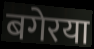
बगेरया